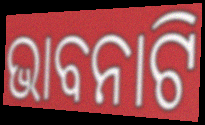
ଭାବନାଟି